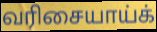
வரிசையாய்க்